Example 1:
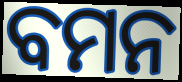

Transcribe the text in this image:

ବମନ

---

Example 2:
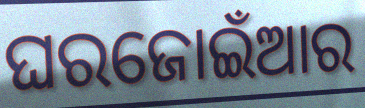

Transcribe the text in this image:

ଘରଜୋଇଁଆର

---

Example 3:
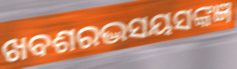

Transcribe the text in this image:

ଖବଶରଦ୍ଭସୟସଙ୍କଜ୍ଞ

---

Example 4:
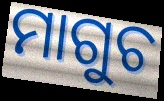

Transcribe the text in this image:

ମାଗୁଚ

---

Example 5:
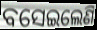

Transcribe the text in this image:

ବସେଇଲେଣି